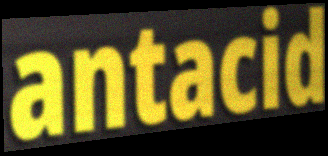
antacid